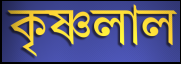
কৃষ্ণলাল